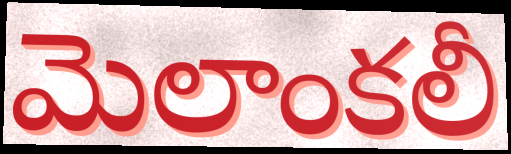
మెలాంకలీ